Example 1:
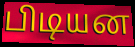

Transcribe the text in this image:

பிடியன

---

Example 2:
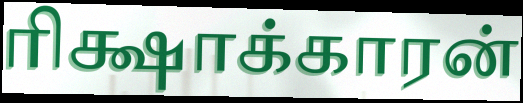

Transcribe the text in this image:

ரிக்ஷாக்காரன்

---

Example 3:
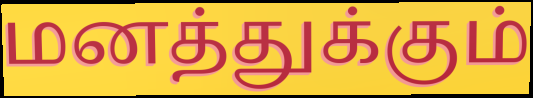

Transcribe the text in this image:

மனத்துக்கும்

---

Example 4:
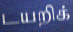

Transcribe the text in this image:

டயறிக்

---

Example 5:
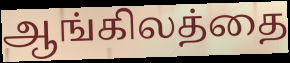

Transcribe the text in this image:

ஆங்கிலத்தை